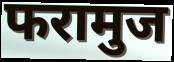
फरामुज